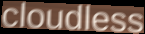
cloudless